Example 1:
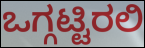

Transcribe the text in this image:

ಒಗ್ಗಟ್ಟಿರಲಿ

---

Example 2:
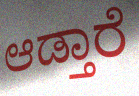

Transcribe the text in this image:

ಆಡ್ತಾರೆ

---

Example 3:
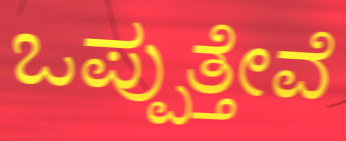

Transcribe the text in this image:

ಒಪ್ಪುತ್ತೇವೆ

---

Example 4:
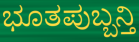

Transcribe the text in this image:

ಭೂತಪುಬ್ಬನ್ತಿ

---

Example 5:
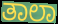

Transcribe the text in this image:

ತಾಲಾ